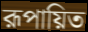
রূপায়িত